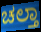
ಚಲ್ತಾ